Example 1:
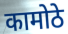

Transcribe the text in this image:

कामोठे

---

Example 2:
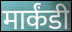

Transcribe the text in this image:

मार्कंडी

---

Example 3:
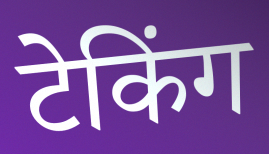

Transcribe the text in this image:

टेकिंग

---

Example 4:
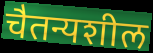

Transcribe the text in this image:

चैतन्यशील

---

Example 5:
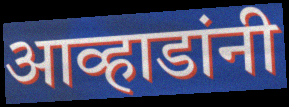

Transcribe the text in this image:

आव्हाडांनी